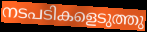
നടപടികളെടുത്തു